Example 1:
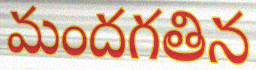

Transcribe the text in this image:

మందగతిన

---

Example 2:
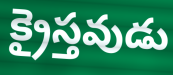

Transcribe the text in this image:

క్రైస్తవుడు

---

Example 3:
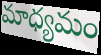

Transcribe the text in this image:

మాధ్యమం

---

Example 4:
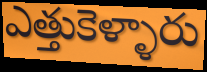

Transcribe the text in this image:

ఎత్తుకెళ్ళారు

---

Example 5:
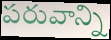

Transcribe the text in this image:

పరువాన్ని